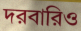
দরবারিও